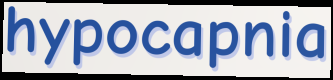
hypocapnia